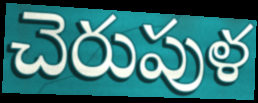
చెరుపుళ